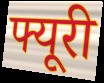
फ्यूरी